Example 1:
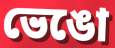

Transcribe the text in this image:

ভেঙো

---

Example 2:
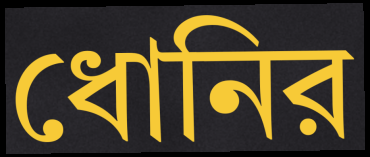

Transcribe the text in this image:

ধোনির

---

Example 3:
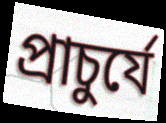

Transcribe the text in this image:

প্রাচুর্যে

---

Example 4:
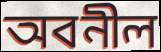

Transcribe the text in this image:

অবনীল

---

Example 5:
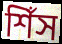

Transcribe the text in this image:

শিঁস